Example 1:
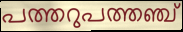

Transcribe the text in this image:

പത്തറുപത്തഞ്ച്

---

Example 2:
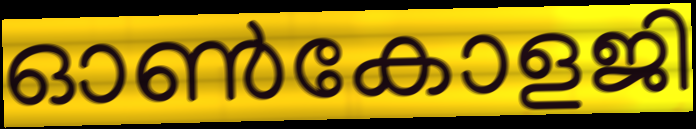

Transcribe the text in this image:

ഓൺകോളജി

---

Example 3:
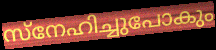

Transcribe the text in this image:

സ്നേഹിച്ചുപോകും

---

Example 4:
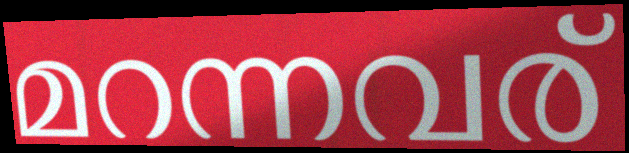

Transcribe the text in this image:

മറന്നവര്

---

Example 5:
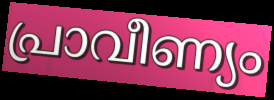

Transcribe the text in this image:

പ്രാവീണ്യം